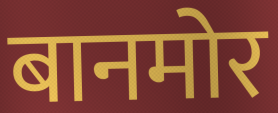
बानमोर